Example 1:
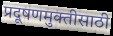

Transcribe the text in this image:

प्रदूषणमुक्तीसाठी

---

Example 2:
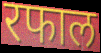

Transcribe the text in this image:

रफाल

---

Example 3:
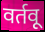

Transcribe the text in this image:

वर्तवू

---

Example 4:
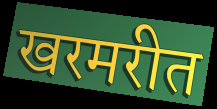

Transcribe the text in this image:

खरमरीत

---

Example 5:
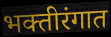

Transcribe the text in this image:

भक्तीरंगात